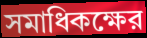
সমাধিকক্ষের